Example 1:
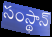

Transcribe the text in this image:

సంస్థాన్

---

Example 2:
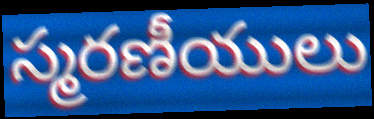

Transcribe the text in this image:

స్మరణీయులు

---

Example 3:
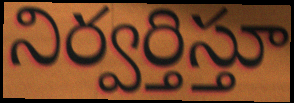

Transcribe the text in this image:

నిర్వర్తిస్తూ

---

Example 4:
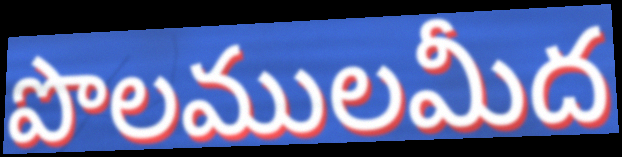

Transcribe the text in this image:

పొలములమీద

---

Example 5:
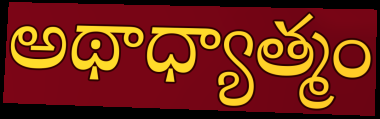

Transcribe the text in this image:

అథాధ్యాత్మం